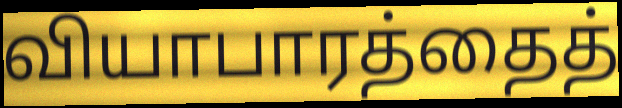
வியாபாரத்தைத்